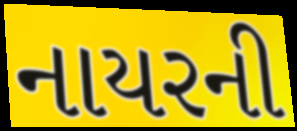
નાયરની